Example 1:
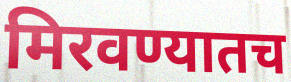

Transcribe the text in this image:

मिरवण्यातच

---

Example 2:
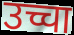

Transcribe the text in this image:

उच्चा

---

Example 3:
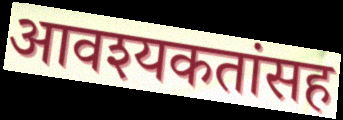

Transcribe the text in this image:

आवश्यकतांसह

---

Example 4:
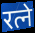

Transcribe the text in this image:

रत्ने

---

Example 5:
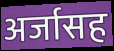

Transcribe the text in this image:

अर्जासह